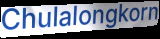
Chulalongkorn